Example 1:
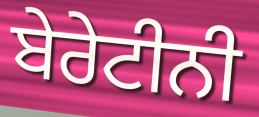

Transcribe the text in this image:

ਬੇਰੇਟੀਨੀ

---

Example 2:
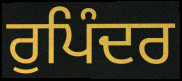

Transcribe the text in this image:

ਰੁਪਿੰਦਰ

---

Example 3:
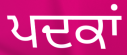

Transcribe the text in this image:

ਪਦਕਾਂ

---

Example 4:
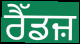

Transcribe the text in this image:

ਰੈੱਡਜ਼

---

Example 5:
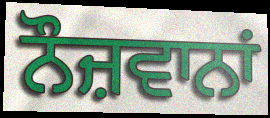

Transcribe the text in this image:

ਨੌਜ਼ਵਾਨਾਂ